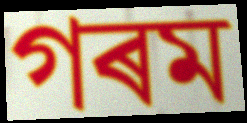
গৰম